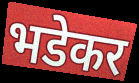
भडेकर